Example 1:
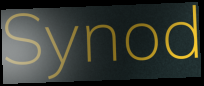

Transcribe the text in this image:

Synod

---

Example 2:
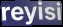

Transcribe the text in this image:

reyisi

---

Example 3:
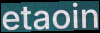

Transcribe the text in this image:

etaoin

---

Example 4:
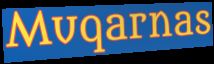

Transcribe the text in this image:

Muqarnas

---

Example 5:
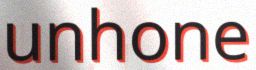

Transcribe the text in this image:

unhone